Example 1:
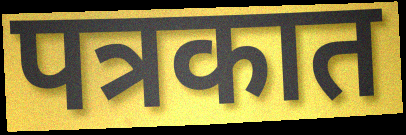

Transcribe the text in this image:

पत्रकात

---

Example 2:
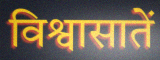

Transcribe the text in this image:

विश्वासातें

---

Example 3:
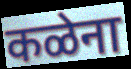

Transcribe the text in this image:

कळेना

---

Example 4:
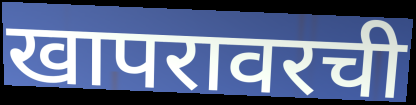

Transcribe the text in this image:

खापरावरची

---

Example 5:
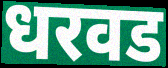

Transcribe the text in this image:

धरवड